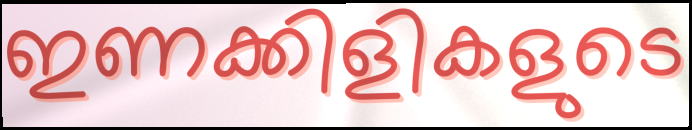
ഇണക്കിളികളുടെ